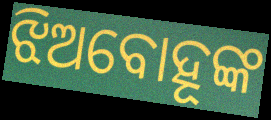
ଝିଅବୋହୂଙ୍କ